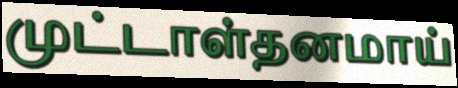
முட்டாள்தனமாய்